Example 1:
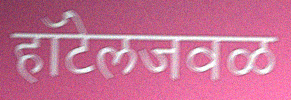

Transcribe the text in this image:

हॉटेलजवळ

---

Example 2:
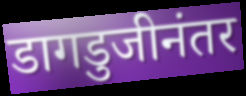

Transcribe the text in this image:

डागडुजीनंतर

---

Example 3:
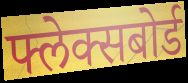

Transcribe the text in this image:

फ्लेक्सबोर्ड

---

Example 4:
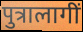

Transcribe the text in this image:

पुत्रालागीं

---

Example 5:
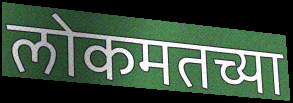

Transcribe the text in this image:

लोकमतच्या